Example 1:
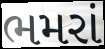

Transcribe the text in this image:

ભમરાં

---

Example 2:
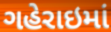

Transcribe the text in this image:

ગહેરાઇમાં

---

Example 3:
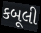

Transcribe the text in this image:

કબૂલી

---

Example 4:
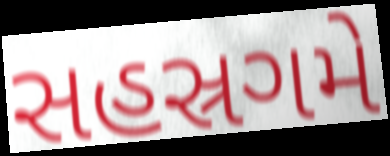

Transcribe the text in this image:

સહસ્રગમે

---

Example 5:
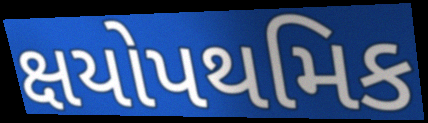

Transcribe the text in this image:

ક્ષયોપથમિક